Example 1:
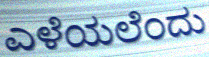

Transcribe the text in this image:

ಎಳೆಯಲೆಂದು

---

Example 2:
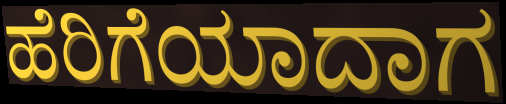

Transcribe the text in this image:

ಹೆರಿಗೆಯಾದಾಗ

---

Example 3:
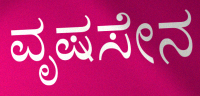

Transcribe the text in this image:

ವೃಷಸೇನ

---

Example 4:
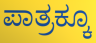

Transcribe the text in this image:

ಪಾತ್ರಕ್ಕೂ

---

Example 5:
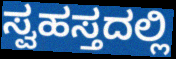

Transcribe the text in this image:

ಸ್ವಹಸ್ತದಲ್ಲಿ